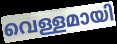
വെള്ളമായി